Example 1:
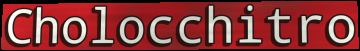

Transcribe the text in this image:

Cholocchitro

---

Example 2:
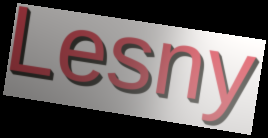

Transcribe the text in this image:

Lesny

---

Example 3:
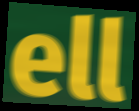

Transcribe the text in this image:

ell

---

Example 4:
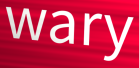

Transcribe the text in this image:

wary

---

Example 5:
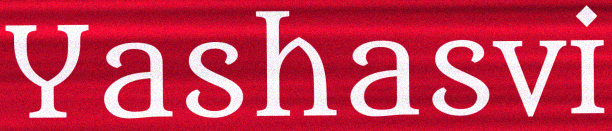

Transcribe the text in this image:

Yashasvi